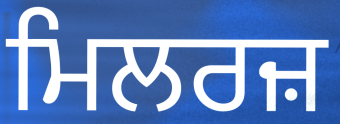
ਮਿਲਰਜ਼